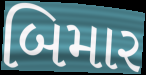
બિમાર